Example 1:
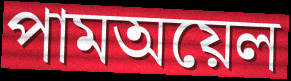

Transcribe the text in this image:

পামঅয়েল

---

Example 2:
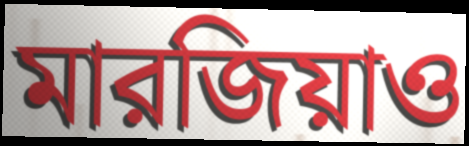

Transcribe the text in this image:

মারজিয়াও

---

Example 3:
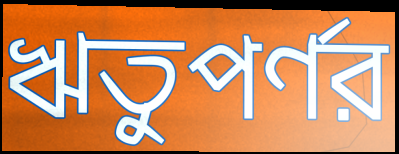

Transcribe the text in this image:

ঋতুপর্ণর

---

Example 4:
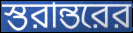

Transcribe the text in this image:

স্তরান্তরের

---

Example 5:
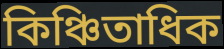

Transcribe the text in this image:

কিঞ্চিতাধিক